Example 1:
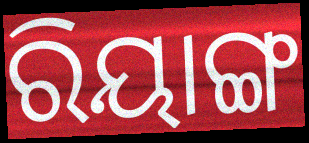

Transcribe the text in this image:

ରିୟାଙ୍ଗ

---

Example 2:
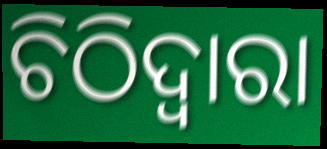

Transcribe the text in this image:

ଚିଠିଦ୍ୱାରା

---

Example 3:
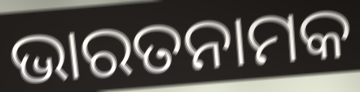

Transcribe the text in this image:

ଭାରତନାମକ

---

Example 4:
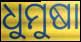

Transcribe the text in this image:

ଧୁମୁଷା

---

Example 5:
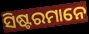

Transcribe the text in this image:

ସିଷ୍ଟରମାନେ